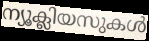
ന്യൂക്ലിയസുകൾ